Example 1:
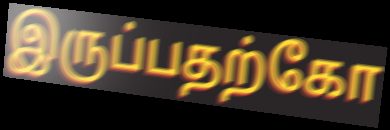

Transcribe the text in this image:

இருப்பதற்கோ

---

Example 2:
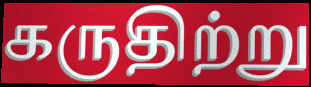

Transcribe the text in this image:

கருதிற்று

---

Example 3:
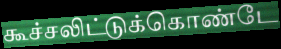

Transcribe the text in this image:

கூச்சலிட்டுக்கொண்டே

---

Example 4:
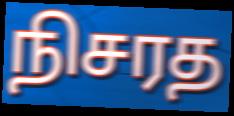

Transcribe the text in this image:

நிசரத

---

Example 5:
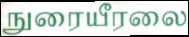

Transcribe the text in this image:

நுரையீரலை